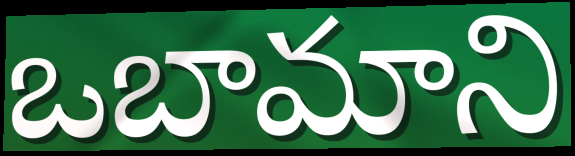
ఒబామాని